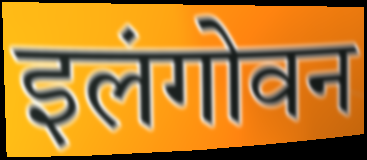
इलंगोवन